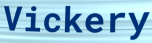
Vickery